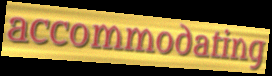
accommodating